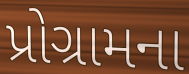
પ્રોગ્રામના